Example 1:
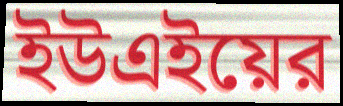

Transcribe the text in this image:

ইউএইয়ের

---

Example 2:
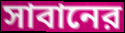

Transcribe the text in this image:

সাবানের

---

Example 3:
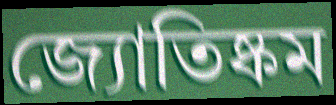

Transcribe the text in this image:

জ্যোতিষ্কম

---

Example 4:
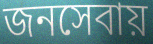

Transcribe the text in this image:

জনসেবায়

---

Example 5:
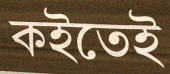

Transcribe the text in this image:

কইতেই